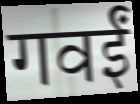
गवईं